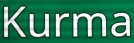
Kurma